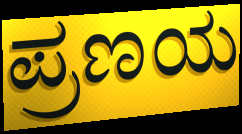
ಪ್ರಣಯ